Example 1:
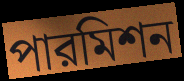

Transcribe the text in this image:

পারমিশন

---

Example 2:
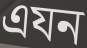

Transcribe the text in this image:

এযন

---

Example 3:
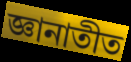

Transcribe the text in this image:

জ্ঞানাতীত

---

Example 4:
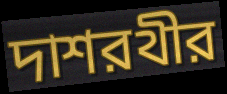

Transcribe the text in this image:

দাশরথীর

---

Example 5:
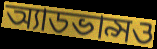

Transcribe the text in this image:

অ্যাডভান্সও